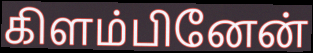
கிளம்பினேன்